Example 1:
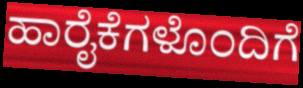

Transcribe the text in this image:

ಹಾರೈಕೆಗಳೊಂದಿಗೆ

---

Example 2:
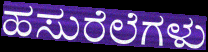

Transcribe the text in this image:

ಹಸುರೆಲೆಗಳು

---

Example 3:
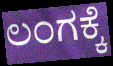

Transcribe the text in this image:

ಲಂಗಕ್ಕೆ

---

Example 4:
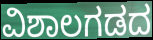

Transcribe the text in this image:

ವಿಶಾಲಗಡದ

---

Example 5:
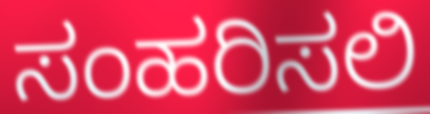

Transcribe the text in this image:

ಸಂಹರಿಸಲಿ